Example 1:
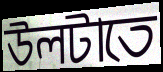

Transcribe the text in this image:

উলটাতে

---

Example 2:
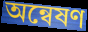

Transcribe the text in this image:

অন্বেষণ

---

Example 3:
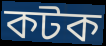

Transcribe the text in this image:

কটক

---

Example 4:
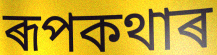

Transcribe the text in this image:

ৰূপকথাৰ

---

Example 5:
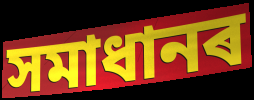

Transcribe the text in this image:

সমাধানৰ